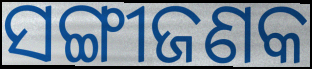
ସଙ୍ଗୀଜଣକ